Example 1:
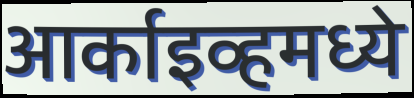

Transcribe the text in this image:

आर्काइव्हमध्ये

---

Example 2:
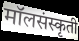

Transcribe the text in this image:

मॉलसंस्कृती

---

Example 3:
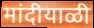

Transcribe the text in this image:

मांदीयाळी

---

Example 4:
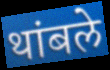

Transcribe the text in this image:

थांबले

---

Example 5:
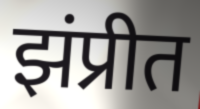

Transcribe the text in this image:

झंप्रीत